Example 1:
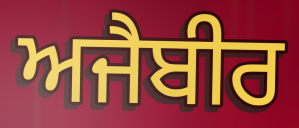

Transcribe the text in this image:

ਅਜੈਬੀਰ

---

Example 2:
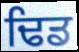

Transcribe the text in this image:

ਢਿਡ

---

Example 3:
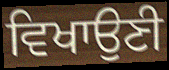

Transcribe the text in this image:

ਵਿਖਾਉਣੀ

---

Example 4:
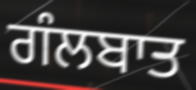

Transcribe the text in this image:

ਗੰਲਬਾਤ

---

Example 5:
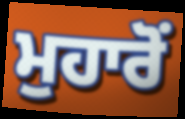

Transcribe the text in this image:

ਮੁਹਾਰੋਂ